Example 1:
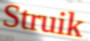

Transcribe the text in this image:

Struik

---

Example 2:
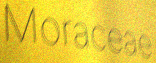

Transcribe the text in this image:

Moraceae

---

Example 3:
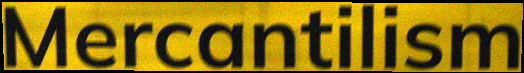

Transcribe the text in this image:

Mercantilism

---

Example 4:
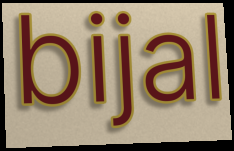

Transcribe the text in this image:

bijal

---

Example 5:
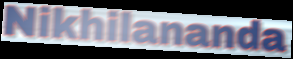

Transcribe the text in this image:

Nikhilananda